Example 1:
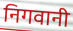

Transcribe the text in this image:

निगवानी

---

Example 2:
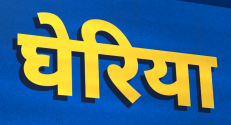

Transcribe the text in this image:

घेरिया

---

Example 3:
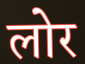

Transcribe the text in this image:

लोर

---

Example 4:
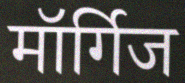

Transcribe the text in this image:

मॉर्गिज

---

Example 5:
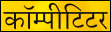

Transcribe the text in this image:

कॉम्पीटिटर